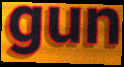
gun